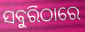
ସବୁରିଠାରେ